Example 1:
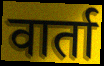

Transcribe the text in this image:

वार्ता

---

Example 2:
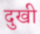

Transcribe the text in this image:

दुखी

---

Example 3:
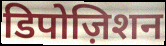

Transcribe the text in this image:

डिपोज़िशन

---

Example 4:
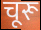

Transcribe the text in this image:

चूरू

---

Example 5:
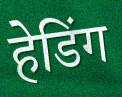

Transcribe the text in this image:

हेडिंग